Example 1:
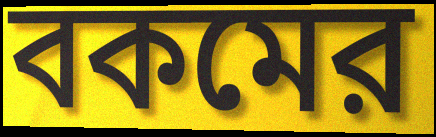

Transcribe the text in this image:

বকমের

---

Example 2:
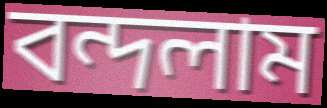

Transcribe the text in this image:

বন্দলাম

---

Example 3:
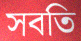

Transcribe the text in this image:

সবতি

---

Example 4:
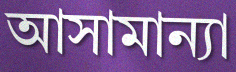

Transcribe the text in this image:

আসামান্যা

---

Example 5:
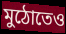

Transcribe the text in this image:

মুঠোতেও